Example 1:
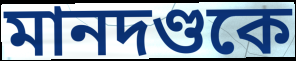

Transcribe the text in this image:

মানদণ্ডকে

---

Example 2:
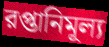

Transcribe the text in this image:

রপ্তানিমূল্য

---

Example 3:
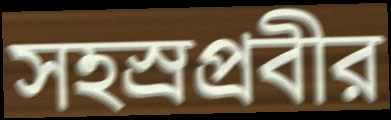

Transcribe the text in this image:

সহস্রপ্রবীর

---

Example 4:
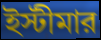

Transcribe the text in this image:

ইস্টীমার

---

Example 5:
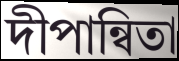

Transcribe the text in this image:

দীপান্বিতা